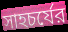
সাহচর্যের